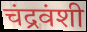
चंद्रवंशी